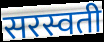
सरस्‍वती